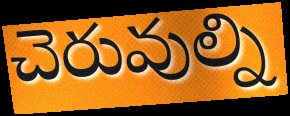
చెరువుల్ని